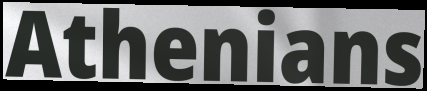
Athenians